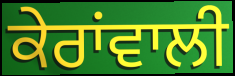
ਕੇਰਾਂਵਾਲੀ